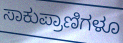
ಸಾಕುಪ್ರಾಣಿಗಳೂ